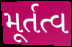
મૂર્તત્વ